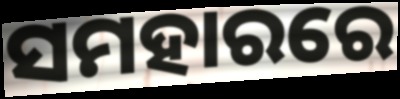
ସମହାରରେ